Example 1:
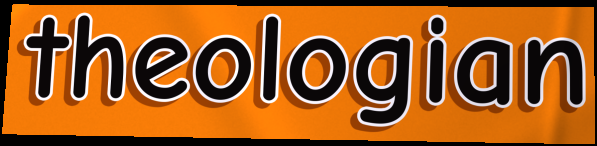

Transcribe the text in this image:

theologian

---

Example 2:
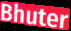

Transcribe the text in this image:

Bhuter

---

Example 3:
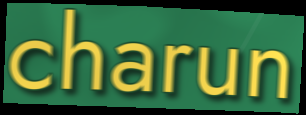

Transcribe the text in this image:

charun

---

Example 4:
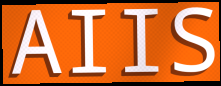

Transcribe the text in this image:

AIIS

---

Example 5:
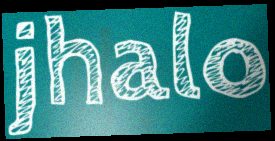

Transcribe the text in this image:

jhalo